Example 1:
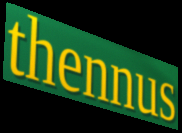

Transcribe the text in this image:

thennus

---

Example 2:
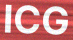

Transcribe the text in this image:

ICG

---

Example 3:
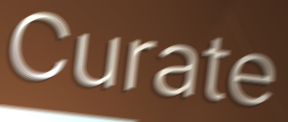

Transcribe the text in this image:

Curate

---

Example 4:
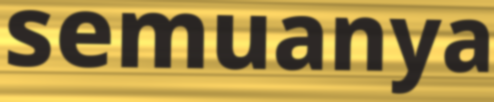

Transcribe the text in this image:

semuanya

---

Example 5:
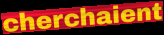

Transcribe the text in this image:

cherchaient